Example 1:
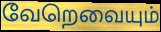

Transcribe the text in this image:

வேறெவையும்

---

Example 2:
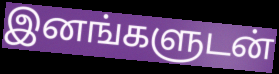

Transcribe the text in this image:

இனங்களுடன்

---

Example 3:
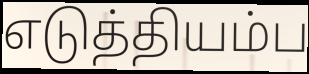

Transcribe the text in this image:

எடுத்தியம்ப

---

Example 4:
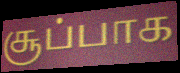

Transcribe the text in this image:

சூப்பாக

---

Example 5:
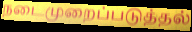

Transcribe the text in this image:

நடைமுறைப்படுத்தல்